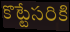
కొట్టేసరికి